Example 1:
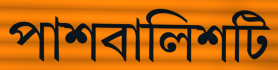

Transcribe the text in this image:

পাশবালিশটি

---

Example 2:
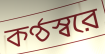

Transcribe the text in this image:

কণ্ঠস্বরে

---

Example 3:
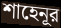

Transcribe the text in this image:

শাহেনূর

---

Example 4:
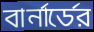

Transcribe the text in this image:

বার্নার্ডের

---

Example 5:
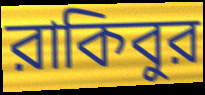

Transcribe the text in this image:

রাকিবুর